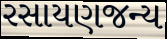
રસાયણજન્ય